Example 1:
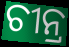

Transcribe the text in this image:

ଚୀନ୍ର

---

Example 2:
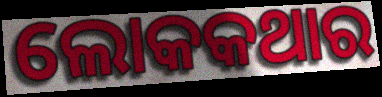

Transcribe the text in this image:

ଲୋକକଥାର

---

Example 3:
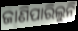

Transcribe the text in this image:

ଜାଣିପାରିଲୁନି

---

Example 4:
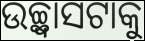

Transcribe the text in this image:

ଉଚ୍ଛ୍ୱାସଟାକୁ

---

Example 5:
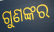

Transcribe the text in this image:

ଗୁଣଙ୍କର